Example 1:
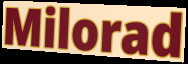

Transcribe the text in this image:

Milorad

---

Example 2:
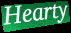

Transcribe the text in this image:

Hearty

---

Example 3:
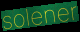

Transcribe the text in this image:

solener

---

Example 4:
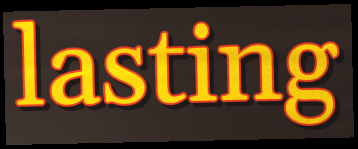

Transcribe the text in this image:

lasting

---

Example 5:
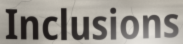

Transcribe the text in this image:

Inclusions